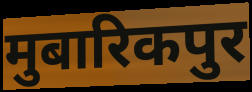
मुबारिकपुर